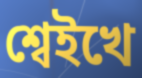
শ্বেইখে